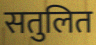
सतुलित